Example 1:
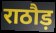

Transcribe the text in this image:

राठौड़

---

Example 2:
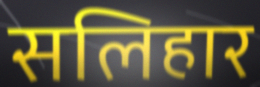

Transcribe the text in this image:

सलिहार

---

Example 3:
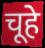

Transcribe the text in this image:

चूहे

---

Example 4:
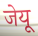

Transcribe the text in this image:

जेयू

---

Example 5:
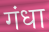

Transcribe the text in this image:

गंधा